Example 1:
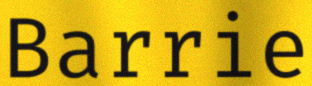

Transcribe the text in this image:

Barrie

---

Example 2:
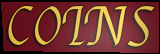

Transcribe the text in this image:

COINS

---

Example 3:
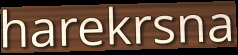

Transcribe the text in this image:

harekrsna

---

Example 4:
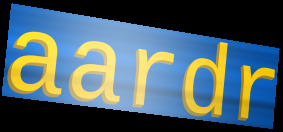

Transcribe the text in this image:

aardr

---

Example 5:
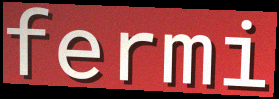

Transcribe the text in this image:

fermi